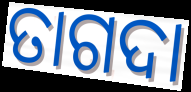
ତାଗଦା